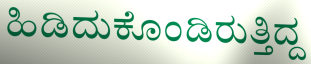
ಹಿಡಿದುಕೊಂಡಿರುತ್ತಿದ್ದ